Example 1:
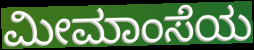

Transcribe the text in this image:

ಮೀಮಾಂಸೆಯ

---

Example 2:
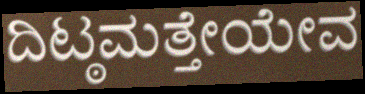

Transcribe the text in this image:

ದಿಟ್ಠಮತ್ತೇಯೇವ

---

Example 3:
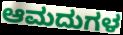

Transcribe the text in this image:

ಆಮದುಗಳ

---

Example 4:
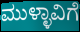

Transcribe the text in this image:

ಮುಳ್ಳಾವಿಗೆ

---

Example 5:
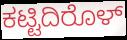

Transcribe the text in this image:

ಕಟ್ಟಿದಿರೊಳ್